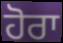
ਹੋਰਾ